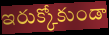
ఇరుక్కోకుండా